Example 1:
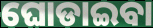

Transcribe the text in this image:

ଘୋଡାଇବା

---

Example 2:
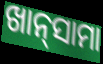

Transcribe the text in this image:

ଖାନ୍‍ସାମା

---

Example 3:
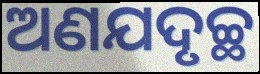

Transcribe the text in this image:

ଅଣଯଦୃଚ୍ଛ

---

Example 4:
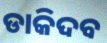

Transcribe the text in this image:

ଡାକିଦବ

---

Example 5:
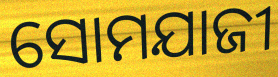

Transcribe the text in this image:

ସୋମଯାଜୀ